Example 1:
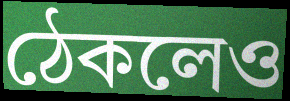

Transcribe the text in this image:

ঠেকলেও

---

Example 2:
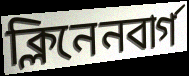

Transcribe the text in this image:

ক্লিনেনবার্গ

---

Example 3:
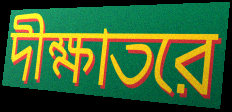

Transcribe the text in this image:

দীক্ষাতরে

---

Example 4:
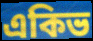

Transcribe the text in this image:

একিভ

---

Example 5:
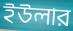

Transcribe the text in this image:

ইউলার